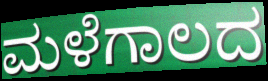
ಮಳೆಗಾಲದ